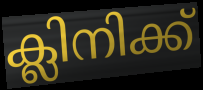
ക്ലിനിക്ക്